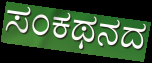
ಸಂಕಥನದ